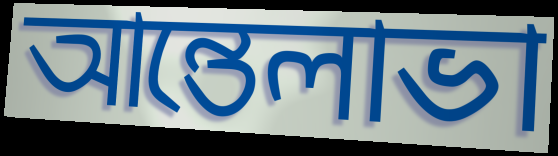
আন্তেলাভা